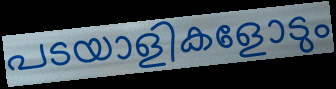
പടയാളികളോടും